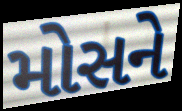
મોસને